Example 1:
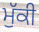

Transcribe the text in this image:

ਮੁੱਕੀ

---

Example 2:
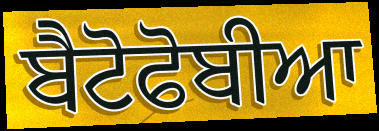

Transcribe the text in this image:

ਬੈਟੋਫੋਬੀਆ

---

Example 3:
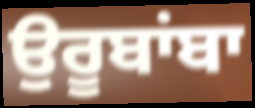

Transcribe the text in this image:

ਉਰੂਬਾਂਬਾ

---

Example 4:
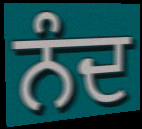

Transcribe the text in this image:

ਨੰਦ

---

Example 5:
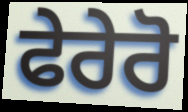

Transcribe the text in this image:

ਫੇਰੇਰੋ